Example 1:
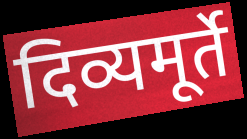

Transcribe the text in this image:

दिव्यमूर्ते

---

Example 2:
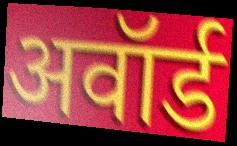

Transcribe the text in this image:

अवॉर्ड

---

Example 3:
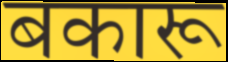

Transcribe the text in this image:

बकारू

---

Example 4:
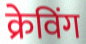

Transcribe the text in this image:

क्रेविंग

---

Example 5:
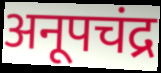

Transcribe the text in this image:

अनूपचंद्र